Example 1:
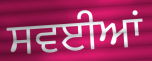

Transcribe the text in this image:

ਸਵਈਆਂ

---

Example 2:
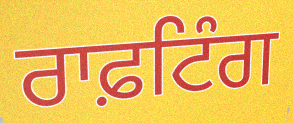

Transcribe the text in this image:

ਰਾਫ਼ਟਿੰਗ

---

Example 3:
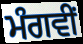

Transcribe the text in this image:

ਮੰਗਵੀਂ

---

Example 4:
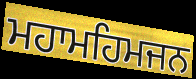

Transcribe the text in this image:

ਮਹਾਮਹਿਮਜਨ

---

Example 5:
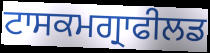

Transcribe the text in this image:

ਟਾਸਕਮਗ੍ਰਾਫੀਲਡ